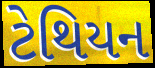
ટેથિયન